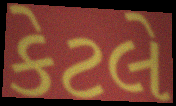
કેટલે